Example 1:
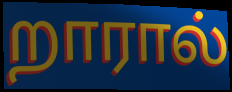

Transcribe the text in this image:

றாரால்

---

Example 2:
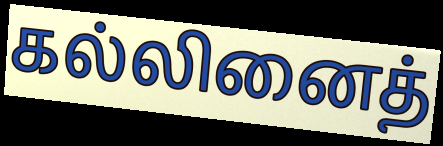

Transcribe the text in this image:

கல்லினைத்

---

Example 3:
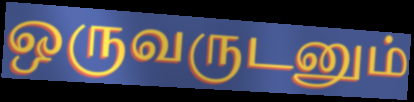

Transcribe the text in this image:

ஒருவருடனும்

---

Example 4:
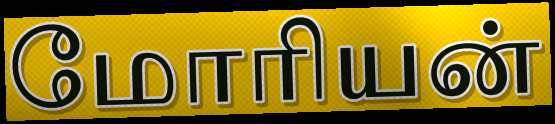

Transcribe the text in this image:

மோரியன்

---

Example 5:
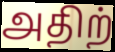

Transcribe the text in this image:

அதிற்